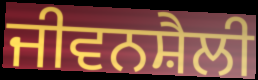
ਜੀਵਨਸ਼ੈਲੀ